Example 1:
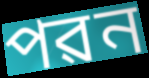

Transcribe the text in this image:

পৱন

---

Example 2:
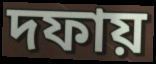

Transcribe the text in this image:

দফায়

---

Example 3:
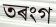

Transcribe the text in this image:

তৰংগ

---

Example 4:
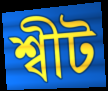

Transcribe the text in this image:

শ্বীট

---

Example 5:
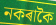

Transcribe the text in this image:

নকৰাকৈ